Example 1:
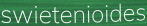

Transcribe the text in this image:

swietenioides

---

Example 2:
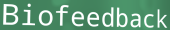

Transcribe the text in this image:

Biofeedback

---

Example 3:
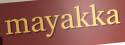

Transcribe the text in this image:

mayakka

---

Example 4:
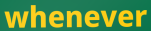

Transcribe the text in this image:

whenever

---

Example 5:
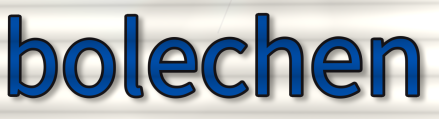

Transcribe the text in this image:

bolechen